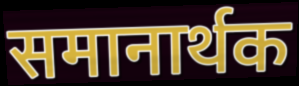
समानार्थक